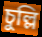
চুল্লি